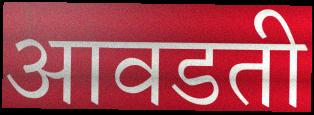
आवडती